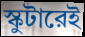
স্কুটারেই